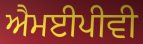
ਐਮਈਪੀਵੀ